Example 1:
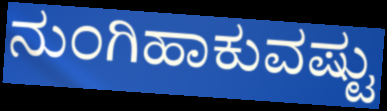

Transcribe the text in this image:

ನುಂಗಿಹಾಕುವಷ್ಟು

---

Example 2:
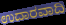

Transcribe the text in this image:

ಉದಾರವಾದಿ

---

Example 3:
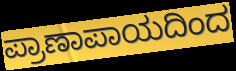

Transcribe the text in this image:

ಪ್ರಾಣಾಪಾಯದಿಂದ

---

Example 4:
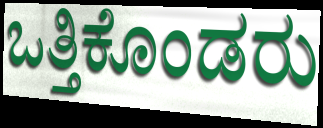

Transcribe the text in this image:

ಒತ್ತಿಕೊಂಡರು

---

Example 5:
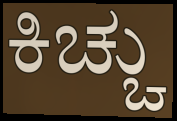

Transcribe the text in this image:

ಕಿಚ್ಚು